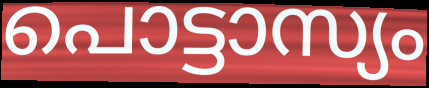
പൊട്ടാസ്യം